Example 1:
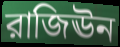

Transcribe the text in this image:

রাজিঊন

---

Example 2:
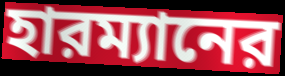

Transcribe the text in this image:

হারম্যানের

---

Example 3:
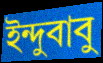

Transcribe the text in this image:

ইন্দুবাবু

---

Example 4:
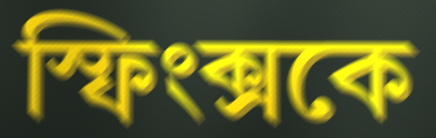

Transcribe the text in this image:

স্ফিংক্সকে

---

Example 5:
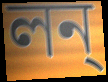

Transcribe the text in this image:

লন্